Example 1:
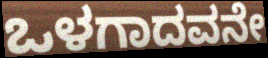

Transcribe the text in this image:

ಒಳಗಾದವನೇ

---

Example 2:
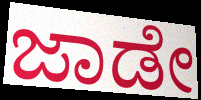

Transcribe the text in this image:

ಜಾಡೇ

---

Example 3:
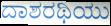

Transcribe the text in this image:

ದಾಶರಥಿಯು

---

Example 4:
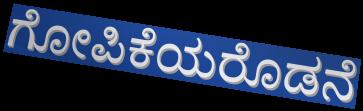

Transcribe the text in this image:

ಗೋಪಿಕೆಯರೊಡನೆ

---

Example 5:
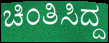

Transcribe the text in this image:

ಚಿಂತಿಸಿದ್ದ